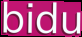
bidu